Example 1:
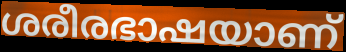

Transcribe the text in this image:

ശരീരഭാഷയാണ്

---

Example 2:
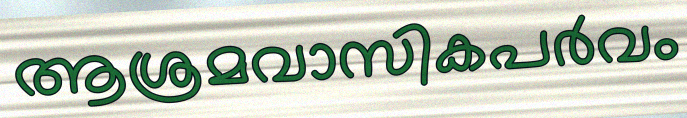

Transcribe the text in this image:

ആശ്രമവാസികപർവം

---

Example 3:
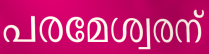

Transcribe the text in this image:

പരമേശ്വരന്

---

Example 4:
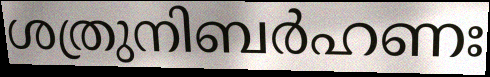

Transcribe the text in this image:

ശത്രുനിബർഹണഃ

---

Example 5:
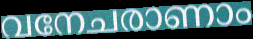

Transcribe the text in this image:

വനേചരാണാം